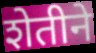
शेतीने